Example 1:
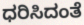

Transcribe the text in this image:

ಧರಿಸಿದಂತೆ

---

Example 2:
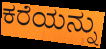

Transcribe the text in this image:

ಕರೆಯನ್ನು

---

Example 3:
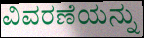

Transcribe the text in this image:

ವಿವರಣೆಯನ್ನು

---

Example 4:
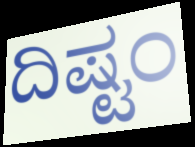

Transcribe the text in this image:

ದಿಷ್ಟಂ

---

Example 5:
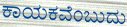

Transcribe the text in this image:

ಕಾಯಕವೆಂಬುದು